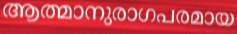
ആത്മാനുരാഗപരമായ